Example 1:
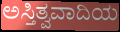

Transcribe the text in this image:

ಅಸ್ತಿತ್ವವಾದಿಯ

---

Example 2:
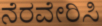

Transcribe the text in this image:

ನೆರವೇರಿಸಿ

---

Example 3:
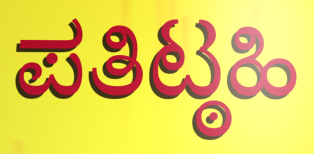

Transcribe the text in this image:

ಪತಿಟ್ಠಹಿ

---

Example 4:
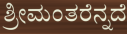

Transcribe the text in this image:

ಶ್ರೀಮಂತರೆನ್ನದೆ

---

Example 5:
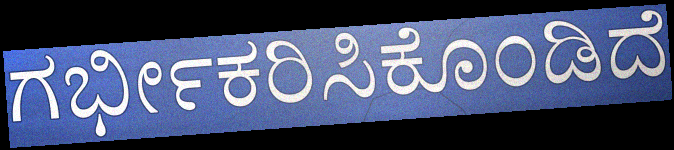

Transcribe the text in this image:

ಗರ್ಭೀಕರಿಸಿಕೊಂಡಿದೆ